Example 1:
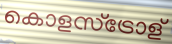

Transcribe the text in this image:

കൊളസ്ട്രോള്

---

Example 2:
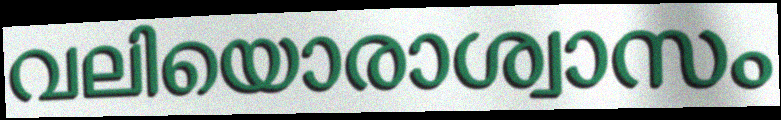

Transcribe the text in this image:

വലിയൊരാശ്വാസം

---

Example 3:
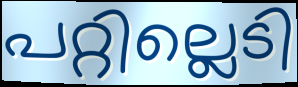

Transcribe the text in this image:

പറ്റില്ലെടി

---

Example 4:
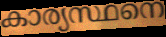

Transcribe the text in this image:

കാര്യസ്ഥനെ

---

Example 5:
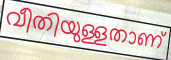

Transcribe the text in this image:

വീതിയുള്ളതാണ്